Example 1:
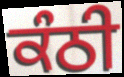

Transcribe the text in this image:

ਕੰਠੀ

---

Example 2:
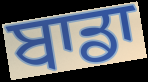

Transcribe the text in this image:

ਬਾਡਾ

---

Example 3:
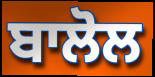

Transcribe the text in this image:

ਬਾਲੋਲ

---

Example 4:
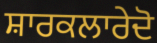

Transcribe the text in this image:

ਸ਼ਾਰਕਲਾਰੇਦੋ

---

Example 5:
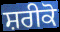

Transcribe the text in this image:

ਸ਼ਰੀਕੋ